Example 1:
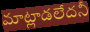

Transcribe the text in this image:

మాట్లాడలేదనీ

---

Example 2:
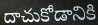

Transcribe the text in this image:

దాచుకోడానికి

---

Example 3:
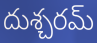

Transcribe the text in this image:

దుశ్చరమ్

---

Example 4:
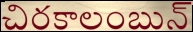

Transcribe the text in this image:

చిరకాలంబున్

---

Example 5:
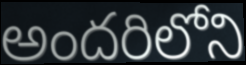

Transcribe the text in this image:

అందరిలోని